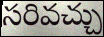
సరివచ్చు